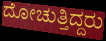
ದೋಚುತ್ತಿದ್ದರು